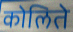
कोलिते